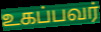
உகப்பவர்